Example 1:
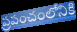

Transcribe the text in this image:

ప్రపంచంలోనికి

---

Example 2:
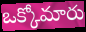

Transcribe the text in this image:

ఒక్కోమారు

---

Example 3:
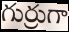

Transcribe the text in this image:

గుర్రుగా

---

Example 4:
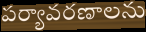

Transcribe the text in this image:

పర్యావరణాలను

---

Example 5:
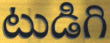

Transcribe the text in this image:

టుడిగి